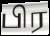
பிர